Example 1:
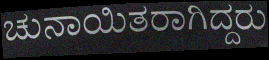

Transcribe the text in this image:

ಚುನಾಯಿತರಾಗಿದ್ದರು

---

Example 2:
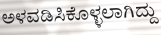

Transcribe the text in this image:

ಅಳವಡಿಸಿಕೊಳ್ಳಲಾಗಿದ್ದು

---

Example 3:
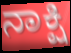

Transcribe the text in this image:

ನಾಕ್ಷಿ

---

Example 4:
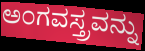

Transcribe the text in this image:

ಅಂಗವಸ್ತ್ರವನ್ನು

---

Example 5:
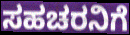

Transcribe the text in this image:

ಸಹಚರನಿಗೆ